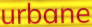
urbane